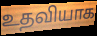
உதவியாக